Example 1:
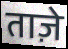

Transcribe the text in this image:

ताज़े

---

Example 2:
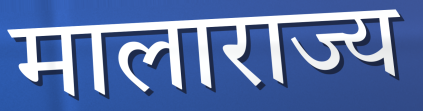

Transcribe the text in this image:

मालाराज्य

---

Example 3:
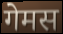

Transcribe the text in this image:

गेमस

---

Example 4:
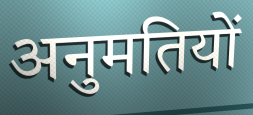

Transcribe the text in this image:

अनुमतियों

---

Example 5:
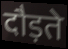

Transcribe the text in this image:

दौड़ते